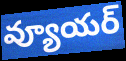
వ్యూయర్